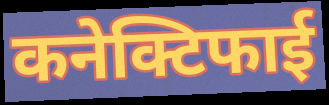
कनेक्टिफाई